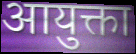
आयुक्ता